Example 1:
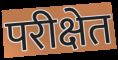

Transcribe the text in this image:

परीक्षेत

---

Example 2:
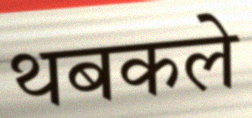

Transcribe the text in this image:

थबकले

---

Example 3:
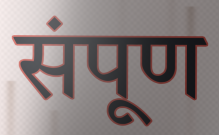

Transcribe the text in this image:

संपूण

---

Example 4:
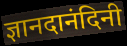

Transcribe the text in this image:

ज्ञानदानंदिनी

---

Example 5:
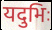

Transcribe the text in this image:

यदुभिः